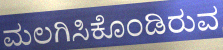
ಮಲಗಿಸಿಕೊಂಡಿರುವ